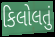
કિલોલતું